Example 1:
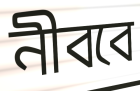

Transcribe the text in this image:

নীববে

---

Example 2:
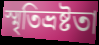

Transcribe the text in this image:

স্মৃতিভ্রষ্টতা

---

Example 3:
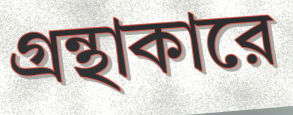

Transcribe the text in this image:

গ্রন্থাকারে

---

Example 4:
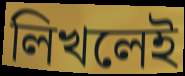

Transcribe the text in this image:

লিখলেই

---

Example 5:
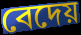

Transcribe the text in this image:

বেদেয়